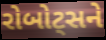
રોબોટ્સને